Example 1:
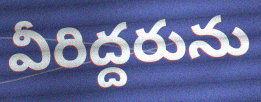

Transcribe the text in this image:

వీరిద్దరును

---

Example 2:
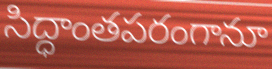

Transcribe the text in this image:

సిద్ధాంతపరంగానూ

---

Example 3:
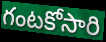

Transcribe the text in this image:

గంటకోసారి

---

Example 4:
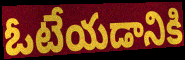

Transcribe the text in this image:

ఓటేయడానికి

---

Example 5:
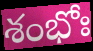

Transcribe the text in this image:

శంభోః